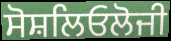
ਸੋਸ਼ਲਿਓਲੋਜੀ